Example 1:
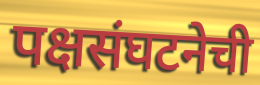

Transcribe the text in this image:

पक्षसंघटनेची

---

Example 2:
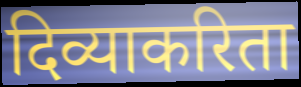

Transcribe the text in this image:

दिव्याकरिता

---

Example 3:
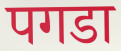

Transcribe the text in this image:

पगडा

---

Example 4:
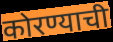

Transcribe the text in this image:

कोरण्याची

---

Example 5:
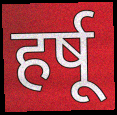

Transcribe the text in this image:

हर्षू